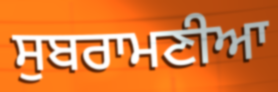
ਸੁਬਰਾਮਣੀਆ